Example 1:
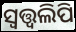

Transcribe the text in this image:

ସ୍ୱତ୍ତ୍ୱଲିପି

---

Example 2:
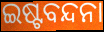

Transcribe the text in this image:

ଇଷ୍ଟବନ୍ଦନା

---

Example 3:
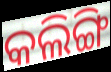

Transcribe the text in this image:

କଲିଙ୍ଗି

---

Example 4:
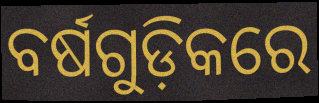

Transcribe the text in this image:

ବର୍ଷଗୁଡ଼ିକରେ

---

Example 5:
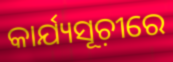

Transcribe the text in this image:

କାର୍ଯ୍ୟସୂଚ଼ୀରେ